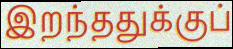
இறந்ததுக்குப்